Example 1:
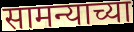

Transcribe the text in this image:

सामन्याच्या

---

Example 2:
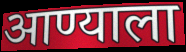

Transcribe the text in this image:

आण्याला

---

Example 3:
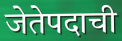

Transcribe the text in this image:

जेतेपदाची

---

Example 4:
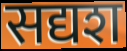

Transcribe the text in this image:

सद्यश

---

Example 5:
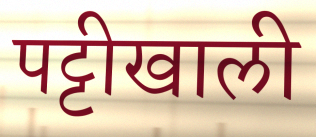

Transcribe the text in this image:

पट्टीखाली